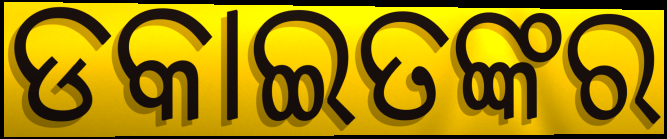
ଡକାଇତଙ୍କର